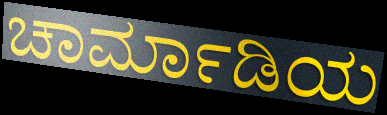
ಚಾರ್ಮಾಡಿಯ